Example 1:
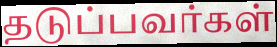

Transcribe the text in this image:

தடுப்பவர்கள்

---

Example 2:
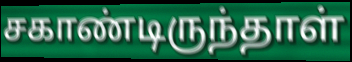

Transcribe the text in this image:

சகாண்டிருந்தாள்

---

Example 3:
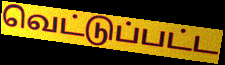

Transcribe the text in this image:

வெட்டுப்பட்ட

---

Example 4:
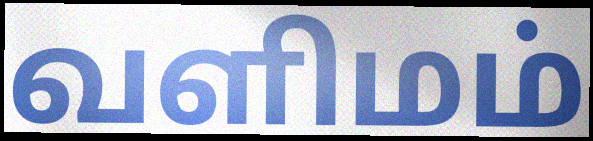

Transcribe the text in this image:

வளிமம்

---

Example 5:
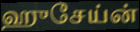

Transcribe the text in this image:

ஹுசேய்ன்